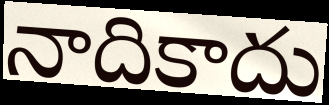
నాదికాదు